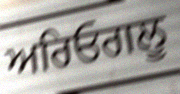
ਅਰਿਓਗਲੂ